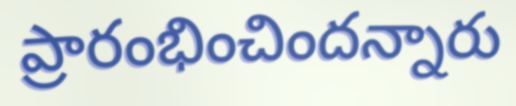
ప్రారంభించిందన్నారు